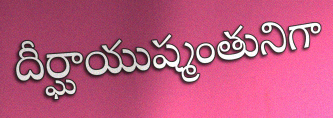
దీర్ఘాయుష్మంతునిగా